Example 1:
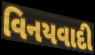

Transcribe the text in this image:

વિનયવાદી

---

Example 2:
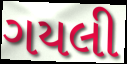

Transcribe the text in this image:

ગયલી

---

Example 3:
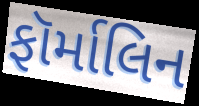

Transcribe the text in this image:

ફૉર્માલિન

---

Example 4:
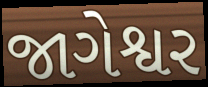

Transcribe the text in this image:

જાગેશ્વર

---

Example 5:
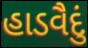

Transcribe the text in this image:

હાડવૈદું